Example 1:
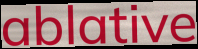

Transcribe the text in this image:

ablative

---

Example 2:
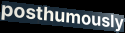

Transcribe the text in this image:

posthumously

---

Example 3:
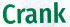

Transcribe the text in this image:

Crank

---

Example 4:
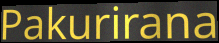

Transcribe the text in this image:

Pakurirana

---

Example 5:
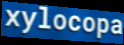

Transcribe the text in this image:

xylocopa